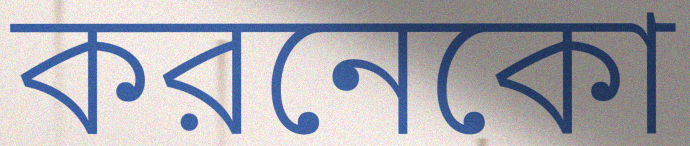
করনেকো